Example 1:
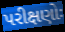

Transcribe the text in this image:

પરીક્ષણોઃ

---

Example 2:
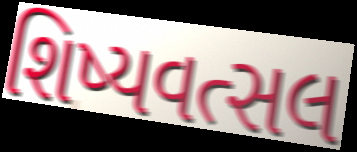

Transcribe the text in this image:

શિષ્યવત્સલ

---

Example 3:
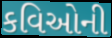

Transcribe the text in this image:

કવિઓની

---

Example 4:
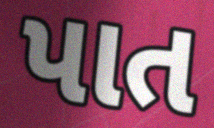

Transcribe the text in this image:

પાત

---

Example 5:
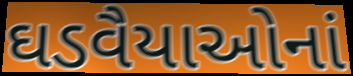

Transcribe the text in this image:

ઘડવૈયાઓનાં